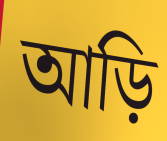
আড়ি